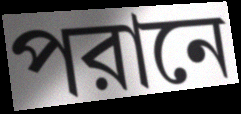
পরানে